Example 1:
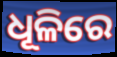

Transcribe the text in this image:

ଧୂଳିରେ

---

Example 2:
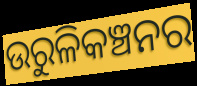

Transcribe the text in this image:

ଉରୁଳିକଞ୍ଚନର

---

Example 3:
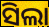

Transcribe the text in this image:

ସିଲା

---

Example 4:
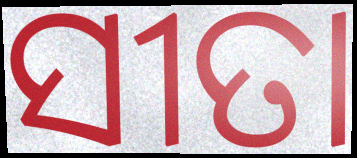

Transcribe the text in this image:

ସୀତା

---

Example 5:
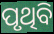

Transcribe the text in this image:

ପୃଥିବି